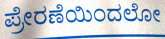
ಪ್ರೇರಣೆಯಿಂದಲೋ